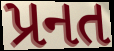
પ્રનત